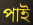
পাই